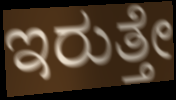
ಇರುತ್ತೇ